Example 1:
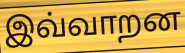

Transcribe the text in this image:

இவ்வாறன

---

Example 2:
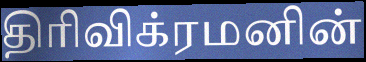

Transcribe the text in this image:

திரிவிக்ரமனின்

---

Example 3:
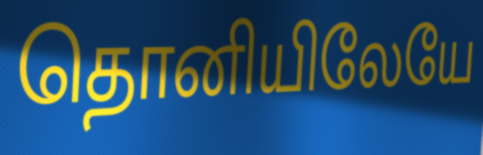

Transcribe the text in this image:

தொனியிலேயே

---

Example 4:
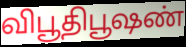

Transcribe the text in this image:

விபூதிபூஷண்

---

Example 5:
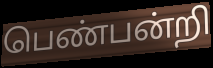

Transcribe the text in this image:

பெண்பன்றி